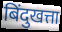
बिंदुखत्ता